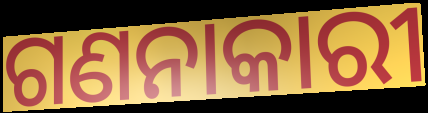
ଗଣନାକାରୀ